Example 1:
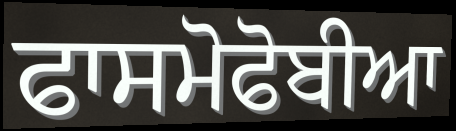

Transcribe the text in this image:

ਫਾਸਮੋਫੋਬੀਆ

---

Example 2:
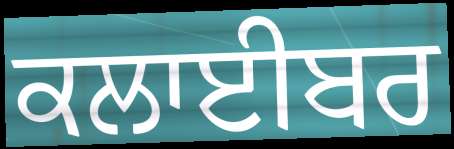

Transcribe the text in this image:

ਕਲਾਈਬਰ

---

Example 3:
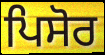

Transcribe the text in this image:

ਪਿਸੋਰ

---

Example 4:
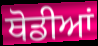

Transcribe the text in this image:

ਥੋਡੀਆਂ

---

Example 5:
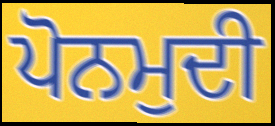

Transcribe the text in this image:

ਪੋਨਮੁਦੀ